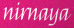
nirnaya